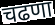
चढणा